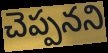
చెప్పనని